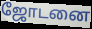
ஜோடனை